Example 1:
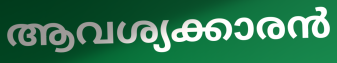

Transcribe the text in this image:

ആവശ്യക്കാരൻ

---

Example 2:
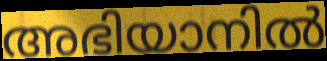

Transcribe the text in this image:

അഭിയാനിൽ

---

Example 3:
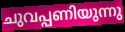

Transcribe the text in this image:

ചുവപ്പണിയുന്നു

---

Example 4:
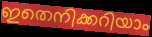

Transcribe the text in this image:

ഇതെനിക്കറിയാം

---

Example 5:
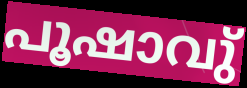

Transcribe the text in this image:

പൂഷാവു്